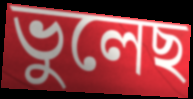
ভুলেছ